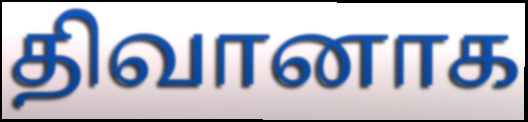
திவானாக